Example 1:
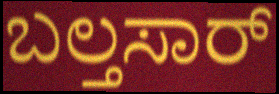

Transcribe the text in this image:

ಬಲ್ತಸಾರ್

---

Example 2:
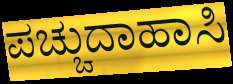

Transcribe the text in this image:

ಪಚ್ಚುದಾಹಾಸಿ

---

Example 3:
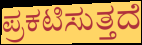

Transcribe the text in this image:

ಪ್ರಕಟಿಸುತ್ತದೆ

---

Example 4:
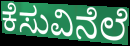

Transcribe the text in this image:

ಕೆಸುವಿನೆಲೆ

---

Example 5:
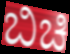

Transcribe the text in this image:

ಬಿಚಿ